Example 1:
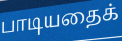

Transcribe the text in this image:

பாடியதைக்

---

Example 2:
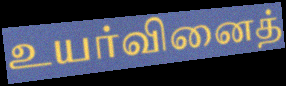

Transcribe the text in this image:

உயர்வினைத்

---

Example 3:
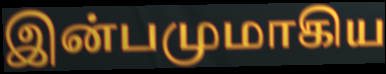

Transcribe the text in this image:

இன்பமுமாகிய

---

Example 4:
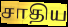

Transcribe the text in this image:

சாதிய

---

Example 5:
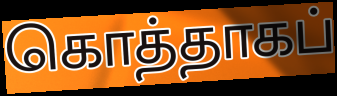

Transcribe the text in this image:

கொத்தாகப்